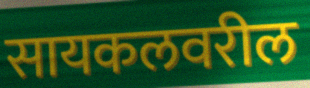
सायकलवरील